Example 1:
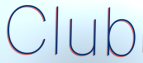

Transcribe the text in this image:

Club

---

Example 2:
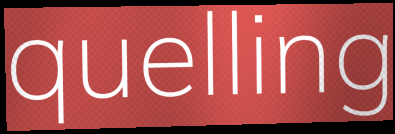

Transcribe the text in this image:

quelling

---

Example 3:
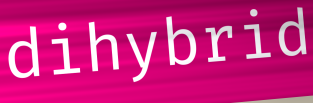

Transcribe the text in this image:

dihybrid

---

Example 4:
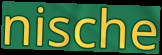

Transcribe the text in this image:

nische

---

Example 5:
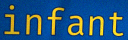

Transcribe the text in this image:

infant